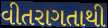
વીતરાગતાથી